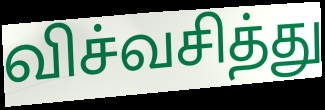
விச்வசித்து